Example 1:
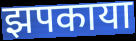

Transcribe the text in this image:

झपकाया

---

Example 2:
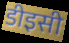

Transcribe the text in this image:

डीइसी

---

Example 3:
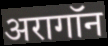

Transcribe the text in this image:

अरागॉन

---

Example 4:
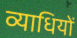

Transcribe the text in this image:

व्याधियों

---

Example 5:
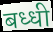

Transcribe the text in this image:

बध्धी